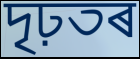
দৃঢ়তৰ